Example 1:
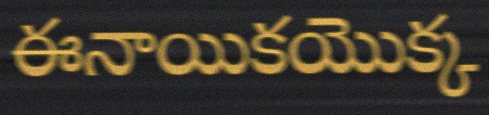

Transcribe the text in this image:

ఈనాయికయొక్క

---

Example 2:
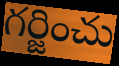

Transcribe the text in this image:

గర్జించు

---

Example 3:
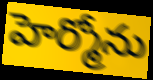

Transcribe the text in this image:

హెర్మోను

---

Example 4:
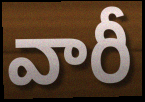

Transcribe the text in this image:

వారీ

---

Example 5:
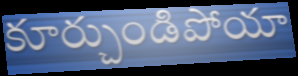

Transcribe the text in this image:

కూర్చుండిపోయా